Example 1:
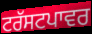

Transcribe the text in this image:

ਟਰੱਸਟਪਾਵਰ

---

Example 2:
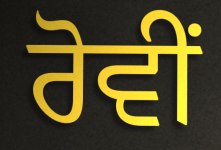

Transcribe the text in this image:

ਰੋਵੀਂ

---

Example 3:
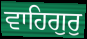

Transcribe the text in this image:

ਵਾਹਿਗੁਰੁ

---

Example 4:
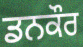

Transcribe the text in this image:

ਡਨਕੌਰ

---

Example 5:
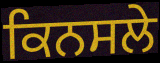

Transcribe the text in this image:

ਕਿਨਸਲੇ